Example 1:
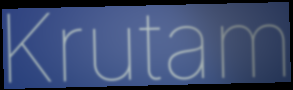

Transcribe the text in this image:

Krutam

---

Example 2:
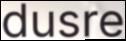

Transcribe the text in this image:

dusre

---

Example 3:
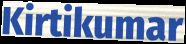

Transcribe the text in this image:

Kirtikumar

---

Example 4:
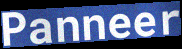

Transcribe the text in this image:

Panneer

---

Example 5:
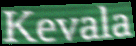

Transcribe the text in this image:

Kevala